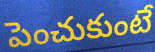
పెంచుకుంటే